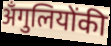
अँगुलियोंकी